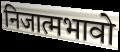
निजात्मभावो